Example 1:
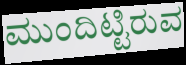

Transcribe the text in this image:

ಮುಂದಿಟ್ಟಿರುವ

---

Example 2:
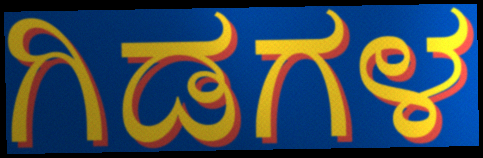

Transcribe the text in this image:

ಗಿಡಗಳ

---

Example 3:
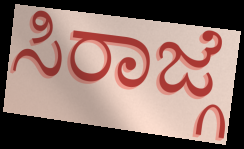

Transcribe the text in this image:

ಸಿರಾಜ್ಗೆ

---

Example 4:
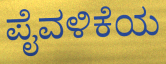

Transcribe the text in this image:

ಪೈವಳಿಕೆಯ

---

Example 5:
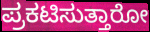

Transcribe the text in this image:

ಪ್ರಕಟಿಸುತ್ತಾರೋ